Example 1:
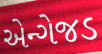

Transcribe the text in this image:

એન્ગેજડ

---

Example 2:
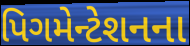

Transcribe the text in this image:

પિગમેન્ટેશનના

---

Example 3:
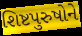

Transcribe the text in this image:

શિષ્ટપુરુષોને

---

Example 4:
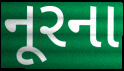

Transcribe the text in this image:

નૂરના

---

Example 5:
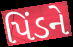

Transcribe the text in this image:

પિંડને